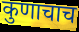
कुणाचाच